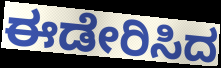
ಈಡೇರಿಸಿದ